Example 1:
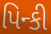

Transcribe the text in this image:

પિન્કી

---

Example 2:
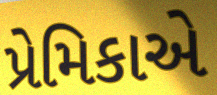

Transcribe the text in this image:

પ્રેમિકાએ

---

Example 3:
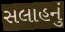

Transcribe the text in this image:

સલાહનું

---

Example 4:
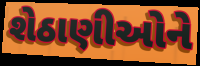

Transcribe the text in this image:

શેઠાણીઓને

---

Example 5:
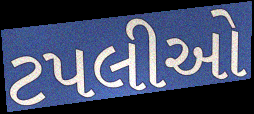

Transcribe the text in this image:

ટપલીઓ